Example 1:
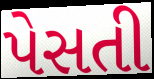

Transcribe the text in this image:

પેસતી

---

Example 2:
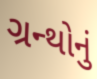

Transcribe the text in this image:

ગ્રન્થોનું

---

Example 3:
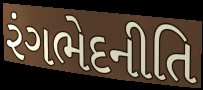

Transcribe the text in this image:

રંગભેદનીતિ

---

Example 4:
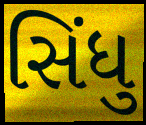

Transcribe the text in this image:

સિંધુ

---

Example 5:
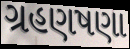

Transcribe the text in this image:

ગ્રહણષણા